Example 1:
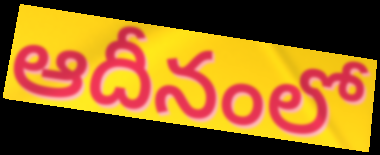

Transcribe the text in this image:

ఆదీనంలో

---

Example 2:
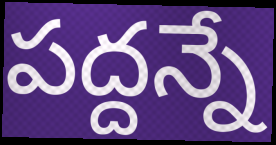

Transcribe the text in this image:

పద్దన్నే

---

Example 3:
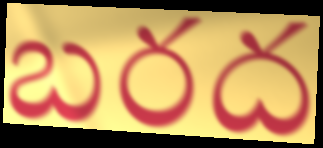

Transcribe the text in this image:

బరద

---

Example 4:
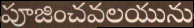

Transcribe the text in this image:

పూజించవలయును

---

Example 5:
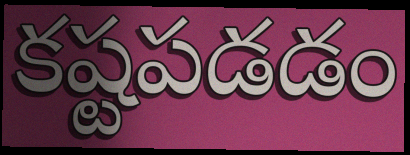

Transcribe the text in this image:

కష్టపడడం